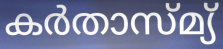
കർതാസ്മ്യ്